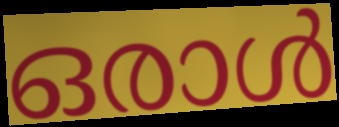
ഒരാൾ